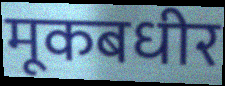
मूकबधीर